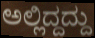
ಅಲ್ಲಿದ್ದದ್ದು